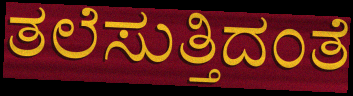
ತಲೆಸುತ್ತಿದಂತೆ